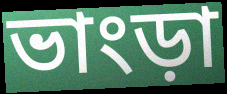
ভাংড়া